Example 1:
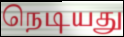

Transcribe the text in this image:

நெடியது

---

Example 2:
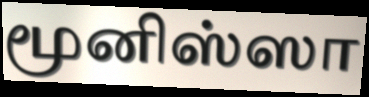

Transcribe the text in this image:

மூனிஸ்ஸா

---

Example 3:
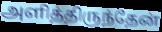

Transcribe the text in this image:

அளித்திருந்தேன்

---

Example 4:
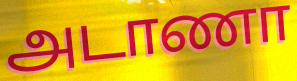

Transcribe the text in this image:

அடாணா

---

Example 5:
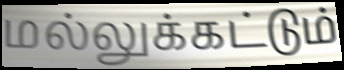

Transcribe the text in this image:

மல்லுக்கட்டும்